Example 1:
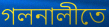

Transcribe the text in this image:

গলনালীতে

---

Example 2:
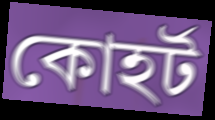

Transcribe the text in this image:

কোহর্ট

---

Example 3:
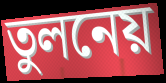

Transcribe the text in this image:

তুলনেয়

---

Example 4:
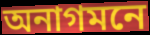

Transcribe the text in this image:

অনাগমনে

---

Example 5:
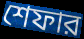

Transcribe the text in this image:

শেফার